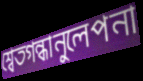
শ্বেতগন্ধানুলেপনা